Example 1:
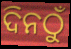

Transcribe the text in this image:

ଦିନଠୁଁ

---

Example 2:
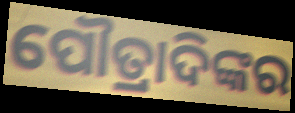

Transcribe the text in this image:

ପୌତ୍ରାଦିଙ୍କର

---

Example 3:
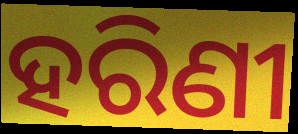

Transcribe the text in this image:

ହରିଣୀ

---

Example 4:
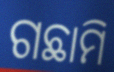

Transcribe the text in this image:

ଗଛାମି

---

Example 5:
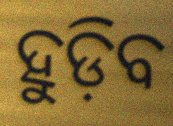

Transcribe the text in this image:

ହୁଡ଼ିବ